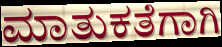
ಮಾತುಕತೆಗಾಗಿ